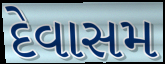
દેવાસમ